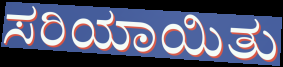
ಸರಿಯಾಯಿತು